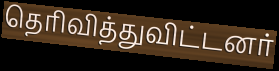
தெரிவித்துவிட்டனர்